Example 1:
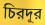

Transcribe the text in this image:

চিরদূর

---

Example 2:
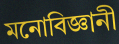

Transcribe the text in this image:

মনোবিজ্ঞানী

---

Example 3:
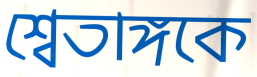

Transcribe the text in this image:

শ্বেতাঙ্গকে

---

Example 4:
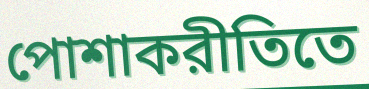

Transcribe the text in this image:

পোশাকরীতিতে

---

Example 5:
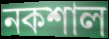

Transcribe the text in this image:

নকশাল